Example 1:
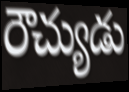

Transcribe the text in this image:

రౌచ్యుడు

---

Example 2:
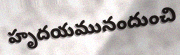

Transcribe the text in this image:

హృదయమునందుంచి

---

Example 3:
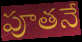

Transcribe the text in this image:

పూతనే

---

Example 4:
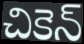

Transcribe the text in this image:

చికెన్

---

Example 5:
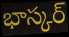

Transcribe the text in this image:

భాస్కర్